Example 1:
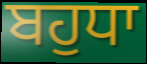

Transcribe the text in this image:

ਬਹੁਧਾ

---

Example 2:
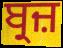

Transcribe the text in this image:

ਬ੍ਰਜ਼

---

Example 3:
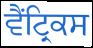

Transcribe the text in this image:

ਵੈਂਟ੍ਰਿਕਸ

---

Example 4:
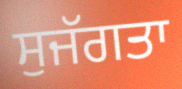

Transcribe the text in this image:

ਸੁਜੱਗਤਾ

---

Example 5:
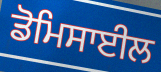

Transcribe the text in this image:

ਡੋਮਿਸਾਈਲ